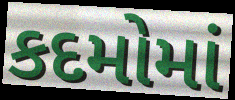
કદમોમાં